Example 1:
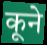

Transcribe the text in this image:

कूने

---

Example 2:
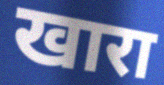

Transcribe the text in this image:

खारा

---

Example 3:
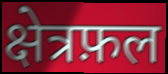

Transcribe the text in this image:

क्षेत्रफ़ल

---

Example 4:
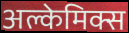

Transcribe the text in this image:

अल्केमिक्स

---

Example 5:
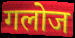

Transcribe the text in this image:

गलोज